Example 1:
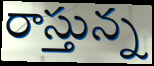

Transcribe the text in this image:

రాస్తున్న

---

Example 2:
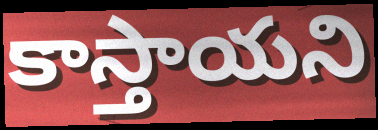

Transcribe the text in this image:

కాస్తాయని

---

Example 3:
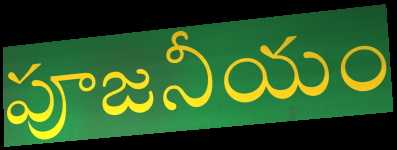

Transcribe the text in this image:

పూజనీయం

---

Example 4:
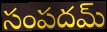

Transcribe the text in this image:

సంపదమ్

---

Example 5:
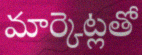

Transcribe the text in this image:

మార్కెట్లతో